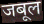
जबूल